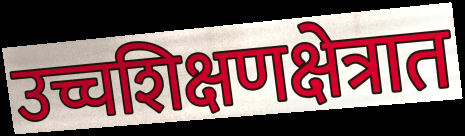
उच्चशिक्षणक्षेत्रात